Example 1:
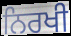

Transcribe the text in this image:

ਨਿਰਖੀ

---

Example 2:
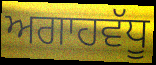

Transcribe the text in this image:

ਅਗਾਹਵੱਧੂ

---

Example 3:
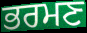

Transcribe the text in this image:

ਭਰਮਣ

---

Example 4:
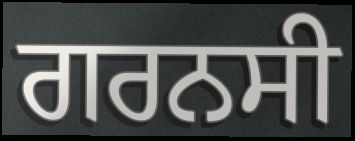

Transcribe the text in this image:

ਗਰਨਸੀ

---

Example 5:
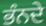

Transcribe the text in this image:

ਭੰਨਦੇ